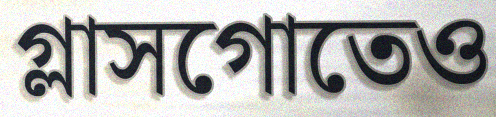
গ্লাসগোতেও